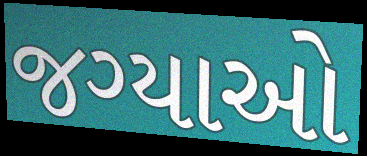
જગ્યાઓ